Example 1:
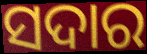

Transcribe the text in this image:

ସଦାର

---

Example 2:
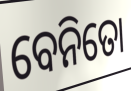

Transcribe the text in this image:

ବେନିତୋ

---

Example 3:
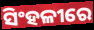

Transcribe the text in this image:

ସିଂହଳୀରେ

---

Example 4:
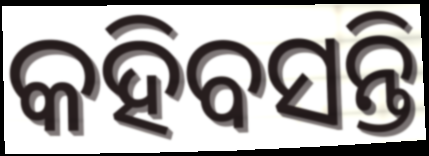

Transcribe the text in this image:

କହିବସନ୍ତି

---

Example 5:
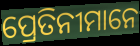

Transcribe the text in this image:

ପ୍ରେତିନୀମାନେ